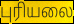
புரியலை